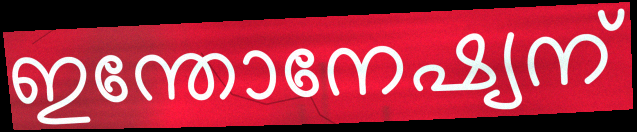
ഇന്തോനേഷ്യന്